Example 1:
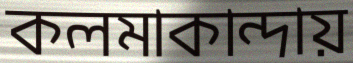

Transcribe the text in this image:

কলমাকান্দায়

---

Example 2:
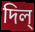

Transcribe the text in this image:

দিল্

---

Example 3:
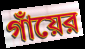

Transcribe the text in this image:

গাঁয়ের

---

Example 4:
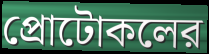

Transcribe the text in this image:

প্রোটোকলের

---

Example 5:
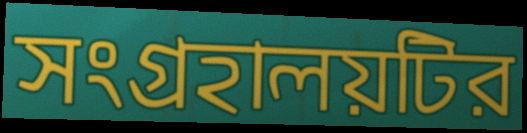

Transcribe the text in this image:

সংগ্রহালয়টির